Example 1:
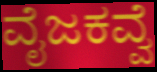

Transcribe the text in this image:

ವೈಜಕವ್ವೆ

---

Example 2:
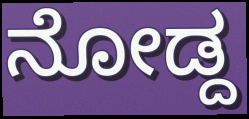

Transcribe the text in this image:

ನೋಡ್ದ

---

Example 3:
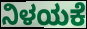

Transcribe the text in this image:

ನಿಳಯಕೆ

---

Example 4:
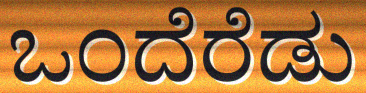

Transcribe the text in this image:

ಒಂದೆರೆಡು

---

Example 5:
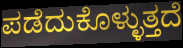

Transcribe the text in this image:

ಪಡೆದುಕೊಳ್ಳುತ್ತದೆ